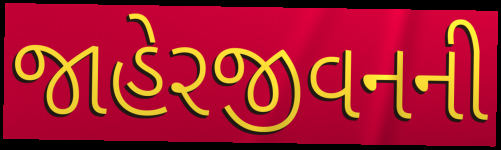
જાહેરજીવનની